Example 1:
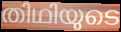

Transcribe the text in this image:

തിഥിയുടെ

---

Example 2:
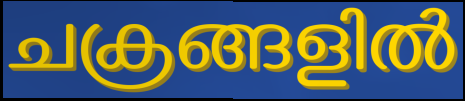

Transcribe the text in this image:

ചക്രങ്ങളിൽ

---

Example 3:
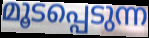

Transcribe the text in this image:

മൂടപ്പെടുന്ന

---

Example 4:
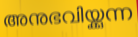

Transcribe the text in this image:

അനുഭവിയ്ക്കുന്ന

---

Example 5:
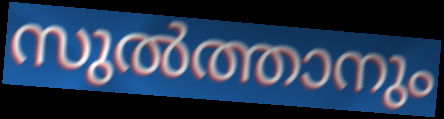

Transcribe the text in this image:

സുൽത്താനും